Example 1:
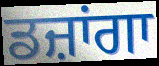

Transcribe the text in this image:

ਡਜ਼ਾਂਗਾ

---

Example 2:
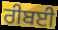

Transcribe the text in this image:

ਰੀਬਈ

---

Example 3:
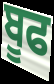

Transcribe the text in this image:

ਬੂਫ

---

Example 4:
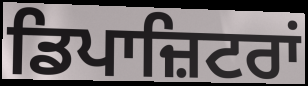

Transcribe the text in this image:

ਡਿਪਾਜ਼ਿਟਰਾਂ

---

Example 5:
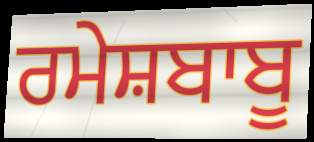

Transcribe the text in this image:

ਰਮੇਸ਼ਬਾਬੂ